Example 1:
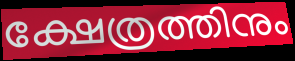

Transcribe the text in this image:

ക്ഷേത്രത്തിനും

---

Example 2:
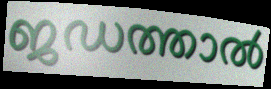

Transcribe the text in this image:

ജഡത്താൽ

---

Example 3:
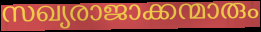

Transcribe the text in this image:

സഖ്യരാജാക്കന്മാരും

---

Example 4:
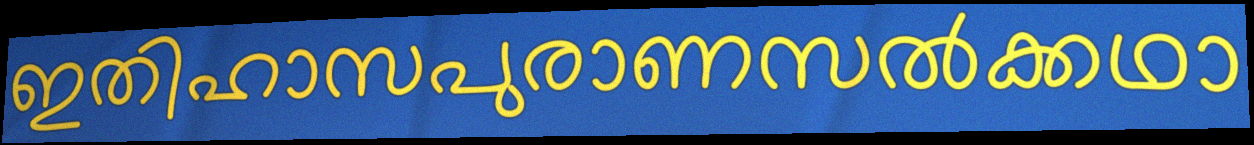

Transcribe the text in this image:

ഇതിഹാസപുരാണസൽക്കഥാ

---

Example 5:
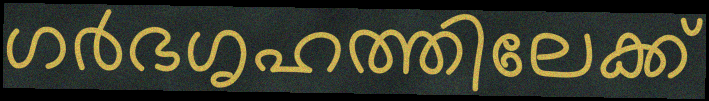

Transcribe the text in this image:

ഗർഭഗൃഹത്തിലേക്ക്